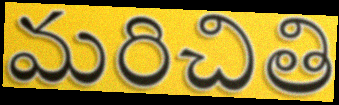
మరిచితి